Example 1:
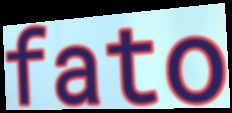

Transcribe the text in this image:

fato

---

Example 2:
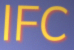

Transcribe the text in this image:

IFC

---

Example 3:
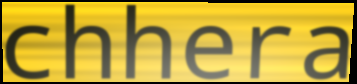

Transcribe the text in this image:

chhera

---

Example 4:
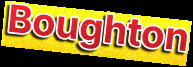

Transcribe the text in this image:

Boughton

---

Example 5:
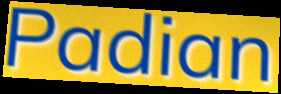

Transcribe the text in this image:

Padian